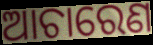
ଆଚାରେଣ